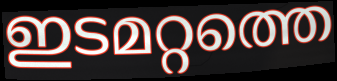
ഇടമറ്റത്തെ